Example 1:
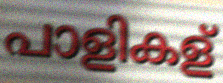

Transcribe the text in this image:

പാളികള്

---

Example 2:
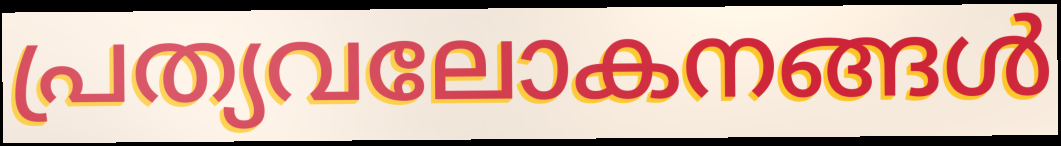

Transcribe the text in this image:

പ്രത്യവലോകനങ്ങൾ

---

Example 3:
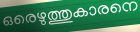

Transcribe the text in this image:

ഒരെഴുത്തുകാരനെ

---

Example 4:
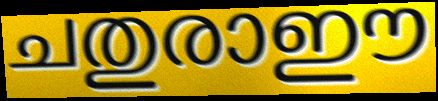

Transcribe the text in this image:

ചതുരാഈ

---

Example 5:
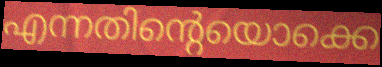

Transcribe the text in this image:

എന്നതിന്റെയൊക്കെ